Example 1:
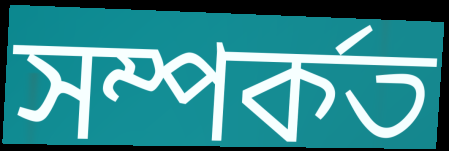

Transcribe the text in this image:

সম্পৰ্কত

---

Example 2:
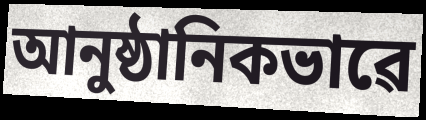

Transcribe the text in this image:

আনুষ্ঠানিকভাৱে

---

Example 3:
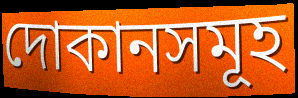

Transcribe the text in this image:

দোকানসমূহ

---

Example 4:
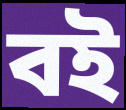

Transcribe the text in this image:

বই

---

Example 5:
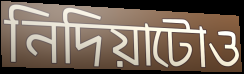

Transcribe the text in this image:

নিদিয়াটোও